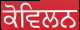
ਕੋਵਿਲਨ